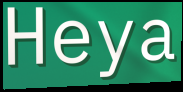
Heya